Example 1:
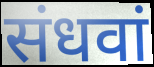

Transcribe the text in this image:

संधवां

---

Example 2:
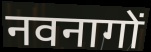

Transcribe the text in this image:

नवनागों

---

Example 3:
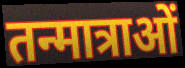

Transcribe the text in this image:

तन्मात्राओं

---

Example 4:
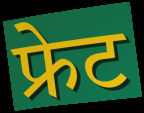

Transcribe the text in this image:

फ्रेट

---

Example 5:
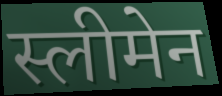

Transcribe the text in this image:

स्लीमेन